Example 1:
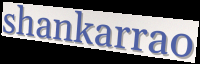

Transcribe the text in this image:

shankarrao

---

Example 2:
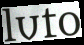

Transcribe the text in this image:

luto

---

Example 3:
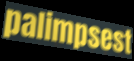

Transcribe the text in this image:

palimpsest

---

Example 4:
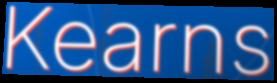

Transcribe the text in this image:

Kearns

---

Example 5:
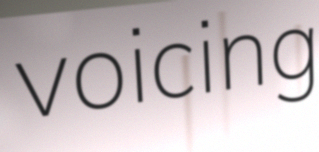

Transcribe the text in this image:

voicing